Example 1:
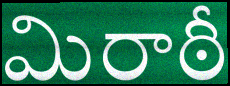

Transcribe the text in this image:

మిరాఠీ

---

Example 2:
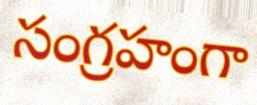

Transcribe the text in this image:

సంగ్రహంగా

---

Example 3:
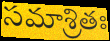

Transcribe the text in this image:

సమాశ్రితః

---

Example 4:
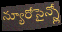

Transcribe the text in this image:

న్యూరోసైన్స్లో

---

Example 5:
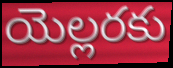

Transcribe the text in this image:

యెల్లరకు